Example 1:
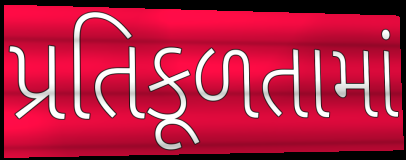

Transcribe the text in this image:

પ્રતિકૂળતામાં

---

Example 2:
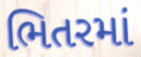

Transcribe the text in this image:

ભિતરમાં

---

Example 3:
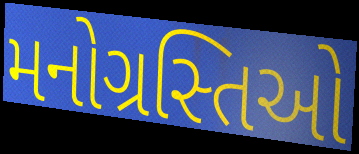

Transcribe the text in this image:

મનોગ્રસ્તિઓ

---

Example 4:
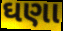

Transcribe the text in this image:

ઘણા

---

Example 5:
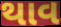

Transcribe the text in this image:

થાવ